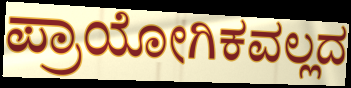
ಪ್ರಾಯೋಗಿಕವಲ್ಲದ